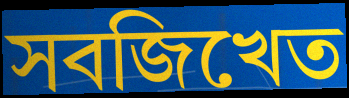
সবজিখেত